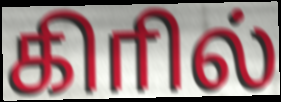
கிரில்